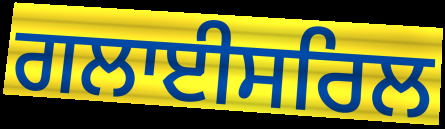
ਗਲਾਈਸਰਿਲ